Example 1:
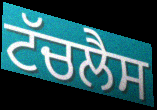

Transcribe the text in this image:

ਟੱਚਲੈਸ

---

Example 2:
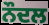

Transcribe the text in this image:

ਨੌਦਲ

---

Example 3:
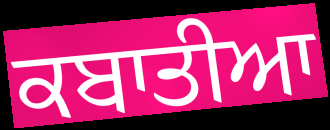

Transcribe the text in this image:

ਕਬਾਤੀਆ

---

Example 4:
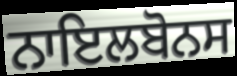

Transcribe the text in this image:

ਨਾਇਲਬੋਨਸ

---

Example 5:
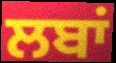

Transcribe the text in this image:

ਲਬਾਂ